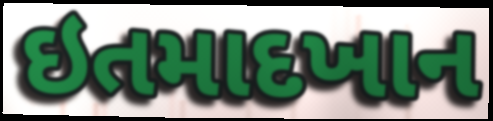
ઇતમાદખાન